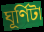
ঘূর্ণিটা